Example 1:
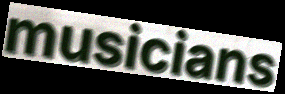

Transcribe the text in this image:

musicians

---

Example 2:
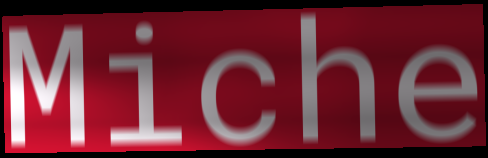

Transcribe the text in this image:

Miche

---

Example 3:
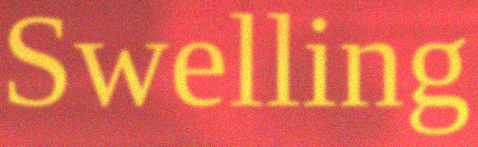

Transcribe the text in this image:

Swelling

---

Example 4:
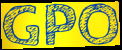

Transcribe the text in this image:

GPO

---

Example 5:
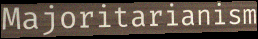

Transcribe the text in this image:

Majoritarianism